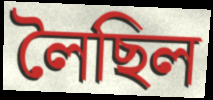
লৈছিল